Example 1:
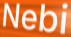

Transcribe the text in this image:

Nebi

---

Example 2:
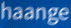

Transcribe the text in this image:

haange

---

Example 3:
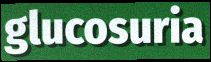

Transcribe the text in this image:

glucosuria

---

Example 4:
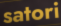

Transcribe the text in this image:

satori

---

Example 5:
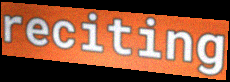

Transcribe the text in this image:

reciting